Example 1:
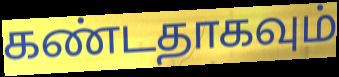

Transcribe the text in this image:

கண்டதாகவும்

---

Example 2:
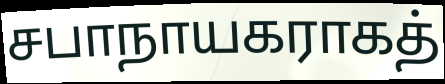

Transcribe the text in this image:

சபாநாயகராகத்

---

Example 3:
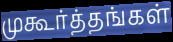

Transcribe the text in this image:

முகூர்த்தங்கள்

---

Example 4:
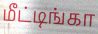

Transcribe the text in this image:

மீட்டிங்கா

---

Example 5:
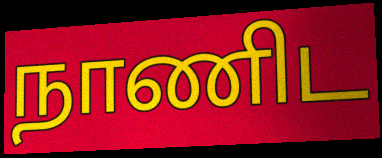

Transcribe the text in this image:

நாணிட